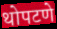
थोपटणे